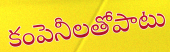
కంపెనీలతోపాటు